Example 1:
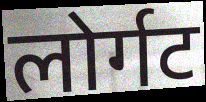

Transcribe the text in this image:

लोर्गट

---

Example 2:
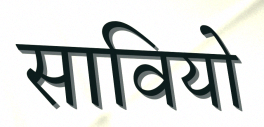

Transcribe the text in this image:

सावियो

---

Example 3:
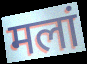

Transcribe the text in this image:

मलां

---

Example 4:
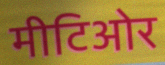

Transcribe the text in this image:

मीटिओर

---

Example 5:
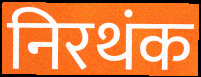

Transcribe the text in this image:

निरथंक